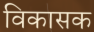
विकासक